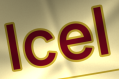
Icel